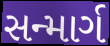
સન્માર્ગ